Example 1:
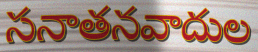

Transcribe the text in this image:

సనాతనవాదుల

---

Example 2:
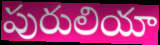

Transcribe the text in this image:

పురులియా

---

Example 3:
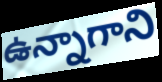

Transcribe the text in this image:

ఉన్నాగాని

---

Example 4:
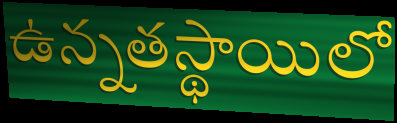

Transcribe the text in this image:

ఉన్నతస్థాయిలో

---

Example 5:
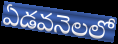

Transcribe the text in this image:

ఏడవనెలలో